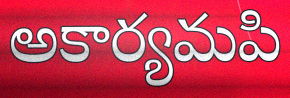
అకార్యమపి